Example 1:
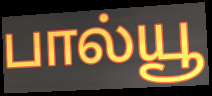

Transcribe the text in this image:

பால்யூ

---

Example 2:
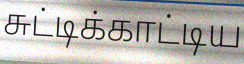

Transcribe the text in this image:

சுட்டிக்காட்டிய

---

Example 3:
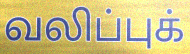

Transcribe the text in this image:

வலிப்புக்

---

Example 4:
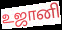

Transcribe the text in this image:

உஜானி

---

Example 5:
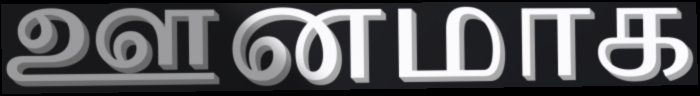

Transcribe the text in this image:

ஊனமாக